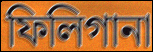
ফিলিগানা